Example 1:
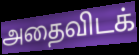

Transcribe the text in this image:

அதைவிடக்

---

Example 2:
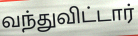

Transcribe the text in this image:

வந்துவிட்டார்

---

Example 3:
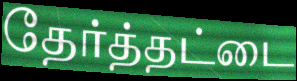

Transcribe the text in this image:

தேர்த்தட்டை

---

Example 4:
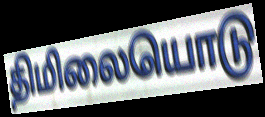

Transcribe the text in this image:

திமிலையொடு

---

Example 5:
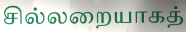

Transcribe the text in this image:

சில்லறையாகத்